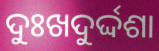
ଦୁଃଖଦୁର୍ଦ୍ଦଶା